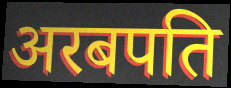
अरबपति